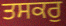
ਤਸਕਰੁ